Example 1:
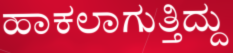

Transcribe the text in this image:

ಹಾಕಲಾಗುತ್ತಿದ್ದು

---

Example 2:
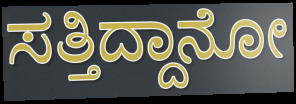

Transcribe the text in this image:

ಸತ್ತಿದ್ದಾನೋ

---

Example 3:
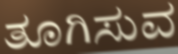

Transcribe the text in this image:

ತೂಗಿಸುವ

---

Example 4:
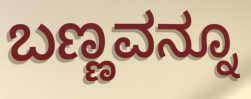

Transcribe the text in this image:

ಬಣ್ಣವನ್ನೂ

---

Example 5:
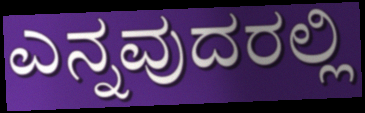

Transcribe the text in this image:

ಎನ್ನವುದರಲ್ಲಿ